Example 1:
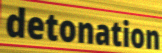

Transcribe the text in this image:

detonation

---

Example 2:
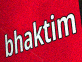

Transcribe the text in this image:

bhaktim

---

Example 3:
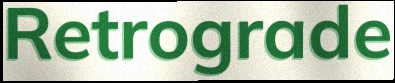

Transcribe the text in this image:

Retrograde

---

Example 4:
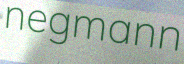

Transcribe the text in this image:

negmann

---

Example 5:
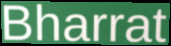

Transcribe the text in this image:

Bharrat